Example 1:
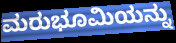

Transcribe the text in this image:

ಮರುಭೂಮಿಯನ್ನು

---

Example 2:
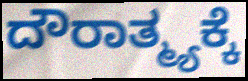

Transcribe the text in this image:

ದೌರಾತ್ಮ್ಯಕ್ಕೆ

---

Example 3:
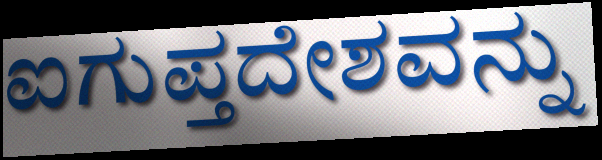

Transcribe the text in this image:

ಐಗುಪ್ತದೇಶವನ್ನು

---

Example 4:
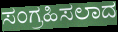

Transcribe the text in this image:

ಸಂಗ್ರಹಿಸಲಾದ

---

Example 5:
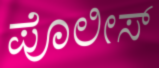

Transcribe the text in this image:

ಪೊಲೀಸ್